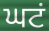
ਘਟਂ